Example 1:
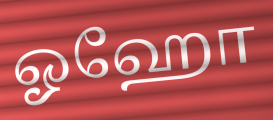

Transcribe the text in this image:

ஓஹோ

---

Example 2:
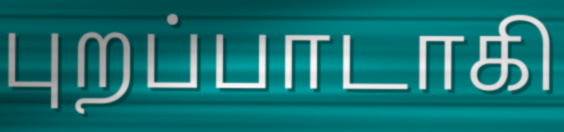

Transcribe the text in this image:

புறப்பாடாகி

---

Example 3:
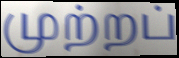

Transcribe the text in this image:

முற்றப்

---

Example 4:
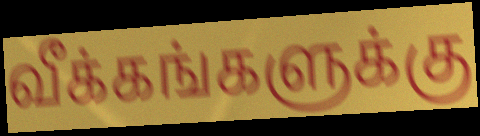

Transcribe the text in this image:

வீக்கங்களுக்கு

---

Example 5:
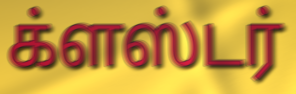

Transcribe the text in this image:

க்ளஸ்டர்